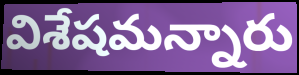
విశేషమన్నారు